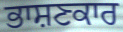
ਭਾਸ਼ਣਕਾਰ